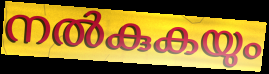
നൽകുകയും